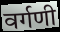
वर्गणी